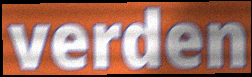
verden